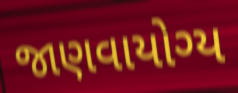
જાણવાયોગ્ય